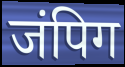
जंपिग